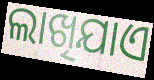
ଲାଖିଯାଏ